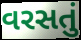
વરસતું